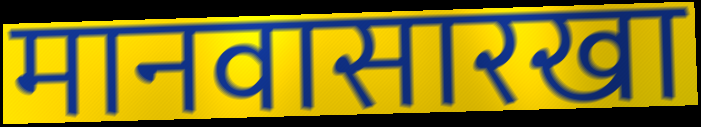
मानवासारखा